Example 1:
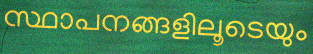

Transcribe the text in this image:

സ്ഥാപനങ്ങളിലൂടെയും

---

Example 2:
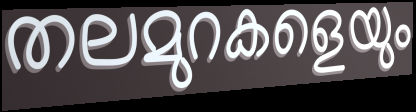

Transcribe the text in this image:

തലമുറകളെയും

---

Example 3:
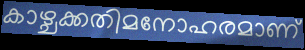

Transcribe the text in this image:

കാഴ്ചക്കതിമനോഹരമാണ്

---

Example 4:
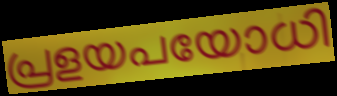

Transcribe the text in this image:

പ്രളയപയോധി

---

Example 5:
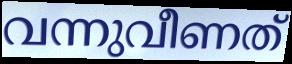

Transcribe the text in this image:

വന്നുവീണത്